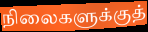
நிலைகளுக்குத்